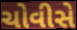
ચોવીસે